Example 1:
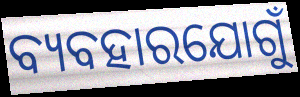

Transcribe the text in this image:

ବ୍ୟବହାରଯୋଗୁଁ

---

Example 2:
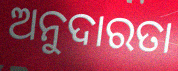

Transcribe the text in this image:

ଅନୁଦାରତା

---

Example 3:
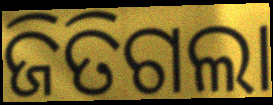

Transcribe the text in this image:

ଜିତିଗଲା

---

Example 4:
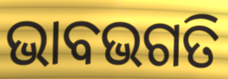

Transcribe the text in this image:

ଭାବଭଗତି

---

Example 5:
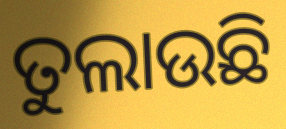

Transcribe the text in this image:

ତୁଲାଉଛି